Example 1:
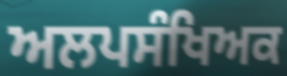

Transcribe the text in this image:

ਅਲਪਸੰਖਿਅਕ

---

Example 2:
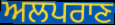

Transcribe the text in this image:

ਅਲਪਰਾਣ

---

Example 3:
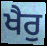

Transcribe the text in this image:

ਖੈਰੁ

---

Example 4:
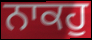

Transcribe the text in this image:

ਨਾਕਹੁ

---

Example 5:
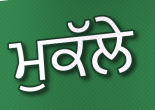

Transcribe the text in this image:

ਮੁਕੱਲੇ